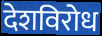
देशविरोध